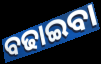
ବଢାଇବା